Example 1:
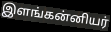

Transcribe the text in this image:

இளங்கன்னியர்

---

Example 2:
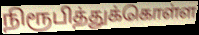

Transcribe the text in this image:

நிரூபித்துக்கொள்ள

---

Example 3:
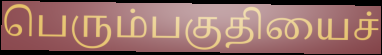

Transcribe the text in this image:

பெரும்பகுதியைச்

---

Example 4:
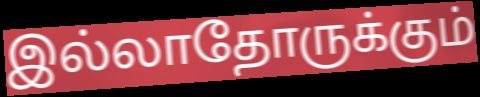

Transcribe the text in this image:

இல்லாதோருக்கும்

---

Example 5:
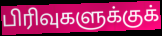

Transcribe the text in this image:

பிரிவுகளுக்குக்